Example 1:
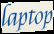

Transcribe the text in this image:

laptop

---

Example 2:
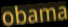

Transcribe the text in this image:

obama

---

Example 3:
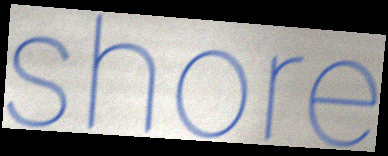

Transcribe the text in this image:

shore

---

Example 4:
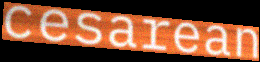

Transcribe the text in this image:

cesarean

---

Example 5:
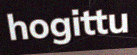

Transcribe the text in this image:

hogittu